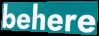
behere